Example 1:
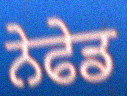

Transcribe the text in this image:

ਨੇਫੇਡ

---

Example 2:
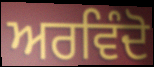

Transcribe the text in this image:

ਅਰਵਿੰਦੋ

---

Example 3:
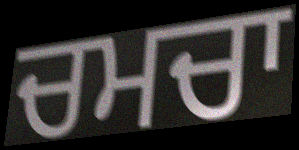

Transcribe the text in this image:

ਚਮਚਾ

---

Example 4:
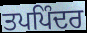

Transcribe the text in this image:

ਤਪਪਿੰਦਰ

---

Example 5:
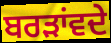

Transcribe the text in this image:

ਬਰੜਾਂਵਦੇ